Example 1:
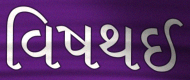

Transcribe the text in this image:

વિષથઈ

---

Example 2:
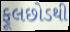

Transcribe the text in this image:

ફૂલછોડથી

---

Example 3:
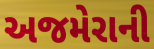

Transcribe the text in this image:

અજમેરાની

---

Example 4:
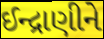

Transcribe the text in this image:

ઈન્દ્રાણીને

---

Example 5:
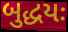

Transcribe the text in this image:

બુદ્ધયઃ